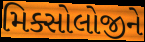
મિક્સોલોજીને